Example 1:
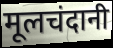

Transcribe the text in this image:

मूलचंदानी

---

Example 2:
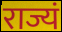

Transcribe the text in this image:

राज्यं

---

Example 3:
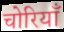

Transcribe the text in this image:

चोरियाँ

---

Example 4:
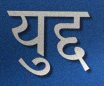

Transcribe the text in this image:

युद्द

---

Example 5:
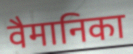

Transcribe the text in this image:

वैमानिका